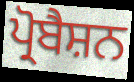
ਪ੍ਰੋਬੈਸ਼ਨ